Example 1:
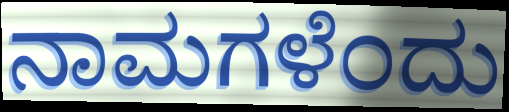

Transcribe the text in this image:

ನಾಮಗಳೆಂದು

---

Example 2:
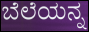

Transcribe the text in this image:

ಬೆಲೆಯನ್ನ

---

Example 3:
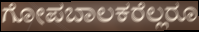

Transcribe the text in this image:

ಗೋಪಬಾಲಕರೆಲ್ಲರೂ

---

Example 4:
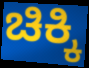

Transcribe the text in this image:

ಚಿಕ್ಕಿ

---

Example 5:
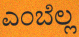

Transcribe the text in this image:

ಎಂಬೆಲ್ಲ